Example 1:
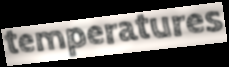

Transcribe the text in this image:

temperatures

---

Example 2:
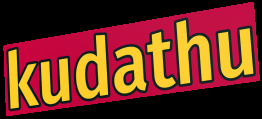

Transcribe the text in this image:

kudathu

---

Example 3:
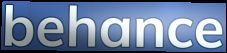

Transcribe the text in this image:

behance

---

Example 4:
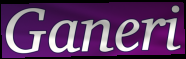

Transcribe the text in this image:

Ganeri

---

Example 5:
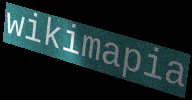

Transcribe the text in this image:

wikimapia